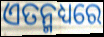
ଏତନ୍ମଧ୍ୟରେ